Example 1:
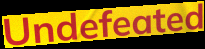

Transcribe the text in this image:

Undefeated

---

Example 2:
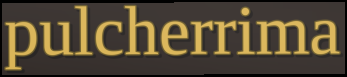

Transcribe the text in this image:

pulcherrima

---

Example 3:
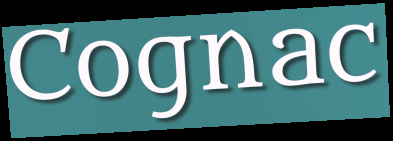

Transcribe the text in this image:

Cognac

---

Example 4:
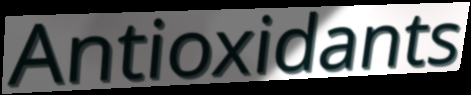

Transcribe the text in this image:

Antioxidants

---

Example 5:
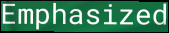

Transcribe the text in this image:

Emphasized